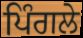
ਪਿੰਗਲੇ